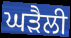
ਘੜੈਲੀ